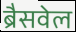
ब्रैसवेल